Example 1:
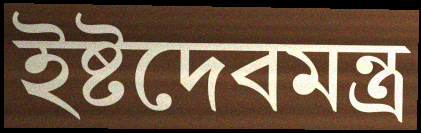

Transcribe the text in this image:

ইষ্টদেবমন্ত্র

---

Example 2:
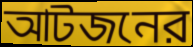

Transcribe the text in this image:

আটজনের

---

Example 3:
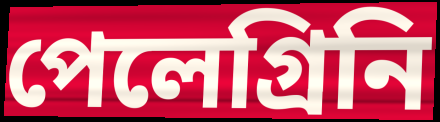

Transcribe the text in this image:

পেলেগ্রিনি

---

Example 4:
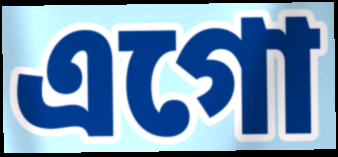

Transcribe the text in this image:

এগো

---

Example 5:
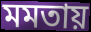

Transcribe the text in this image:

মমতায়